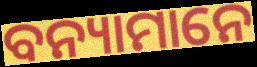
ବନ୍ୟାମାନେ